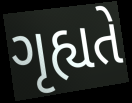
ગૃહ્યતે